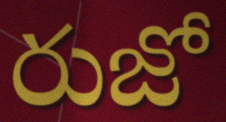
రుజో